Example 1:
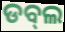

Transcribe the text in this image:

ଡବ୍‌ଲ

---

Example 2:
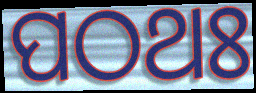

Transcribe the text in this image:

ପଠଥଃ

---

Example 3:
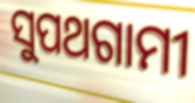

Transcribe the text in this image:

ସୁପଥଗାମୀ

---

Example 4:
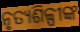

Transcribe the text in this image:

ନୃତ୍ୟଶିଳ୍ପୀଙ୍କ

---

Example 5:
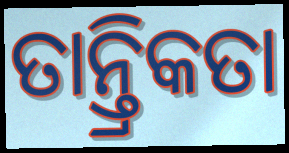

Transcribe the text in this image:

ତାନ୍ତ୍ରିକତା